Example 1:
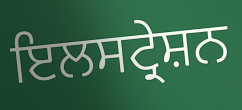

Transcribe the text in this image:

ਇਲਸਟ੍ਰੇਸ਼ਨ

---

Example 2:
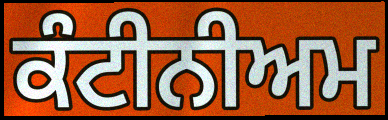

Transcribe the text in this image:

ਕੰਟੀਨੀਅਮ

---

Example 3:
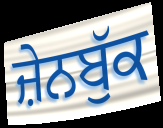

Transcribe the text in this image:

ਜ਼ੇਨਬੁੱਕ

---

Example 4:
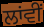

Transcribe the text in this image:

ਲਾਂਵੀਂ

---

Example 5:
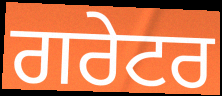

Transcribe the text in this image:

ਗਰੇਟਰ